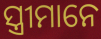
ସ୍ତ୍ରୀମାନେ